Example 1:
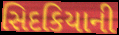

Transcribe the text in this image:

સિદકિયાની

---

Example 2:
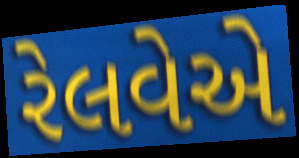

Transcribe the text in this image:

રેલવેએ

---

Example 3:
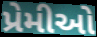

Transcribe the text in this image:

પ્રેમીઓ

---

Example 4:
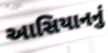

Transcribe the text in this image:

આસિયાનનું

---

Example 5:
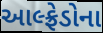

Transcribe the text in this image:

આલ્ફ્રેડોના